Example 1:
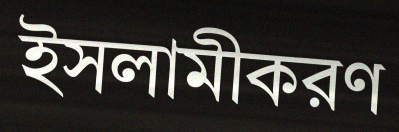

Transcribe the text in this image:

ইসলামীকরণ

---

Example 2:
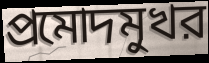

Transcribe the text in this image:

প্রমোদমুখর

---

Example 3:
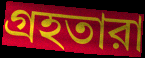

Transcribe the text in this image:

গ্রহতারা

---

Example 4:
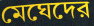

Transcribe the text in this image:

মেঘেদের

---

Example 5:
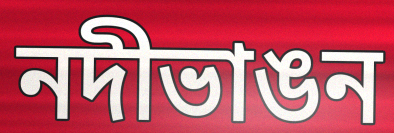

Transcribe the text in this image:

নদীভাঙন